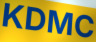
KDMC